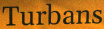
Turbans